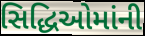
સિદ્ધિઓમાંની